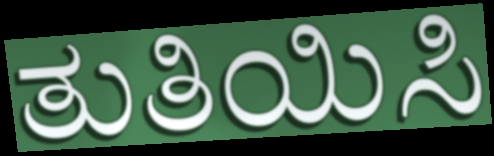
ತುತಿಯಿಸಿ